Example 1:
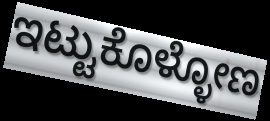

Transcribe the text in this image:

ಇಟ್ಟುಕೊಳ್ಳೋಣ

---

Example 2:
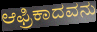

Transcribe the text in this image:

ಆಫ್ರಿಕಾದವನು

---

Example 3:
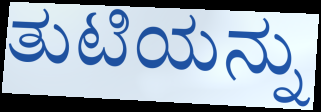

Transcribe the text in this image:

ತುಟಿಯನ್ನು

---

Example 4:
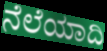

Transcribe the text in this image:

ನೆಲೆಯಾದಿ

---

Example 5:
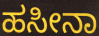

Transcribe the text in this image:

ಹಸೀನಾ